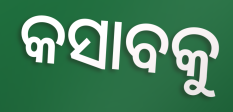
କସାବକୁ